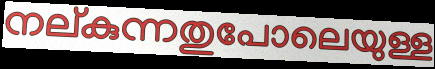
നല്കുന്നതുപോലെയുള്ള